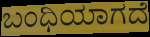
ಬಂಧಿಯಾಗದೆ